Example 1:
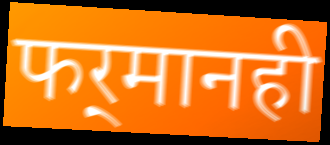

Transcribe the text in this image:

फर्मानही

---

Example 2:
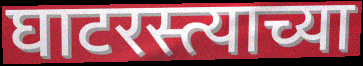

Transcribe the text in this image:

घाटरस्त्याच्या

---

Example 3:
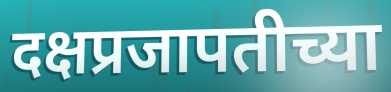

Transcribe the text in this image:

दक्षप्रजापतीच्या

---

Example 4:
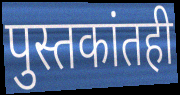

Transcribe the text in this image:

पुस्तकांतही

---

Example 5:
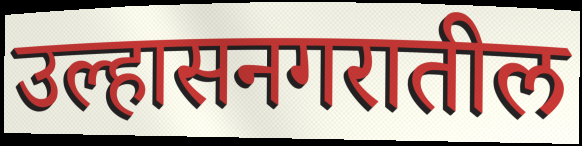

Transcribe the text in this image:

उल्हासनगरातील